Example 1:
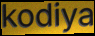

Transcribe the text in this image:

kodiya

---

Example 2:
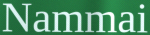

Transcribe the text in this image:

Nammai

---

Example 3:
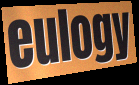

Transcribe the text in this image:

eulogy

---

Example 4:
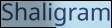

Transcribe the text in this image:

Shaligram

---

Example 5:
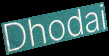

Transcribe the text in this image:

Dhodai